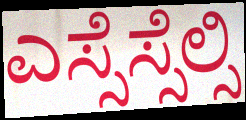
ಎಸ್ಸೆಸ್ಸೆಲ್ಸಿ